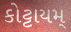
કોટ્ટાયમ્